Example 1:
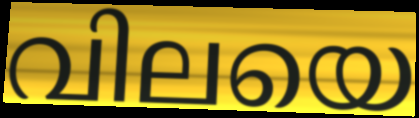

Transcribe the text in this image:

വിലയെ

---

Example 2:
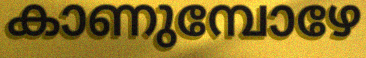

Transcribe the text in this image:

കാണുമ്പോഴേ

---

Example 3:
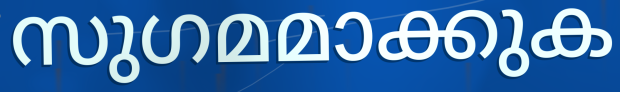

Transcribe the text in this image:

സുഗമമാക്കുക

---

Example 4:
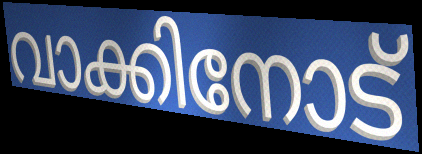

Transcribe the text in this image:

വാക്കിനോട്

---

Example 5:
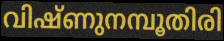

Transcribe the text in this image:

വിഷ്ണുനമ്പൂതിരി